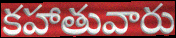
కహాతువారు